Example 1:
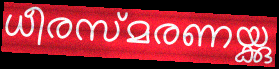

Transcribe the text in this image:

ധീരസ്മരണയ്ക്കു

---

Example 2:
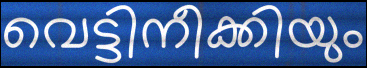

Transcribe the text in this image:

വെട്ടിനീക്കിയും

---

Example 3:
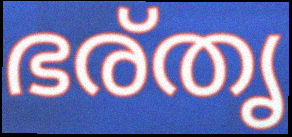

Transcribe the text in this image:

ഭര്തൃ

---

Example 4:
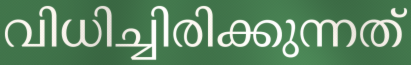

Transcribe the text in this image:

വിധിച്ചിരിക്കുന്നത്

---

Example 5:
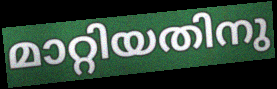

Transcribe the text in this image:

മാറ്റിയതിനു